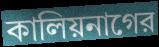
কালিয়নাগের